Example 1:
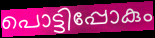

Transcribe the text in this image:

പൊട്ടിപ്പോകും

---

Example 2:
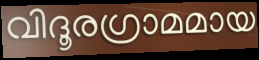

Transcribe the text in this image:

വിദൂരഗ്രാമമായ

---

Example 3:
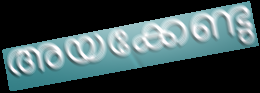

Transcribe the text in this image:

അയക്കേണ്ടു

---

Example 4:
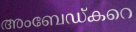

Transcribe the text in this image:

അംബേഡ്കറെ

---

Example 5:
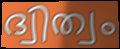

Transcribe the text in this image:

ദ്വിത്വം